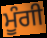
ਮੂੰਗੀ